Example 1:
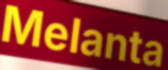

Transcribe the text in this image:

Melanta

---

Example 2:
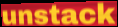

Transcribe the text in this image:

unstack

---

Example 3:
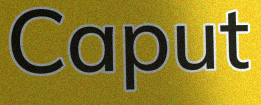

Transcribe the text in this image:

Caput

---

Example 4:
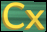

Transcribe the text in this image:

Cx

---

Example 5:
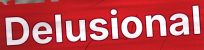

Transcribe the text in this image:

Delusional